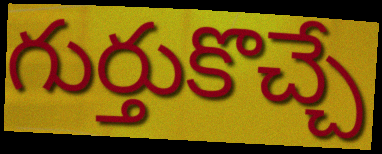
గుర్తుకొచ్చే